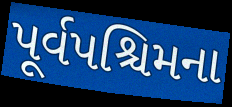
પૂર્વપશ્ચિમના